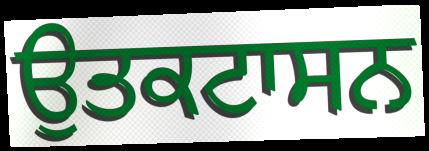
ਉਤਕਟਾਸਨ